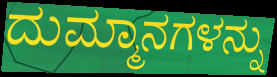
ದುಮ್ಮಾನಗಳನ್ನು